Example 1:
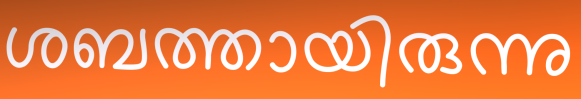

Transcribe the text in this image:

ശബത്തായിരുന്നു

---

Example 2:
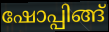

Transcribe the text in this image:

ഷോപ്പിങ്ങ്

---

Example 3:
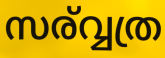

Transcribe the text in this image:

സര്വ്വത്ര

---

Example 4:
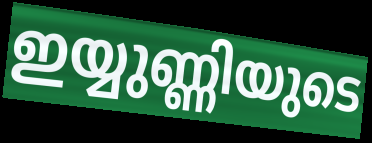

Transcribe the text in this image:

ഇയ്യുണ്ണിയുടെ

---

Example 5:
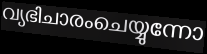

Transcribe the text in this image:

വ്യഭിചാരംചെയ്യുന്നോ